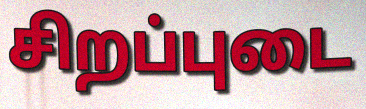
சிறப்புடை